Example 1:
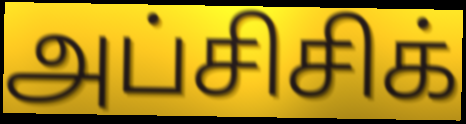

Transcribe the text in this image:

அப்சிசிக்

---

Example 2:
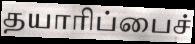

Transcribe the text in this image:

தயாரிப்பைச்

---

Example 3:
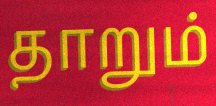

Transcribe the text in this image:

தாறும்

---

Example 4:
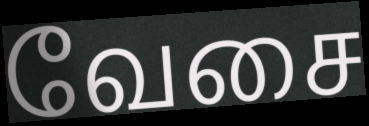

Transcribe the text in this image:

வேசை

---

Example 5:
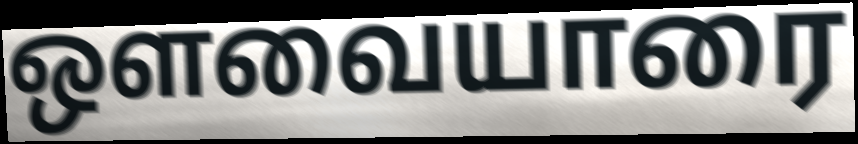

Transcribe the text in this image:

ஔவையாரை